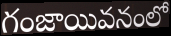
గంజాయివనంలో